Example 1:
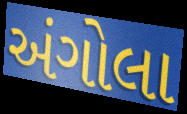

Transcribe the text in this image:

અંગોલા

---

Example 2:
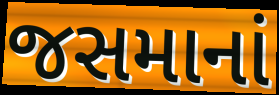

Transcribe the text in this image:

જસમાનાં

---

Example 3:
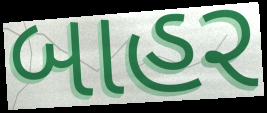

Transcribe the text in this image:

બાહર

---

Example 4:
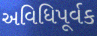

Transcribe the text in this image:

અવિધિપૂર્વક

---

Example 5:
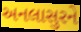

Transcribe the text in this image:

અનલાસુરને